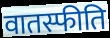
वातस्फीति